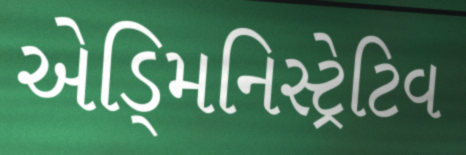
એડ્મિનિસ્ટ્રેટિવ